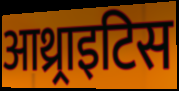
आथ्र्राइटिस